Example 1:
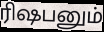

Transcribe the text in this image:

ரிஷபனும்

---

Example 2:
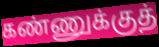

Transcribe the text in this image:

கண்ணுக்குத்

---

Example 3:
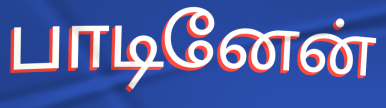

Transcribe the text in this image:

பாடினேன்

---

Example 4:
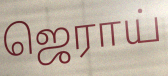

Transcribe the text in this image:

ஜெராய்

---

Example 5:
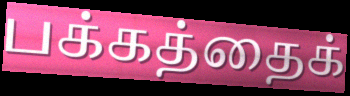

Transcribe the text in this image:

பக்கத்தைக்